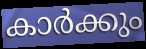
കാർക്കും